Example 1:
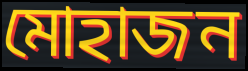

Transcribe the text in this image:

মোহাজন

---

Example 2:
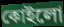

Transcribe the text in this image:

কোইলো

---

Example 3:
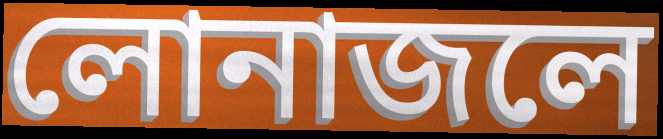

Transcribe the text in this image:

লোনাজলে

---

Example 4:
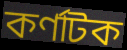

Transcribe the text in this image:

কর্ণাটক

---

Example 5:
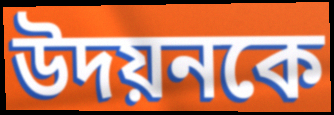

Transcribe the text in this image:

উদয়নকে